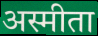
अस्मीता